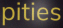
pities